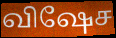
விஷேச